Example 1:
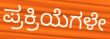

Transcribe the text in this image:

ಪ್ರಕ್ರಿಯೆಗಳೇ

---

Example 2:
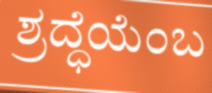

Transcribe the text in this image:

ಶ್ರದ್ಧೆಯೆಂಬ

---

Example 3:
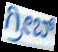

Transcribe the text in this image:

ಗ್ರೀಬ್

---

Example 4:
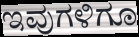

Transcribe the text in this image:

ಇವುಗಳಿಗೂ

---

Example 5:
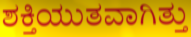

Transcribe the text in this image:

ಶಕ್ತಿಯುತವಾಗಿತ್ತು